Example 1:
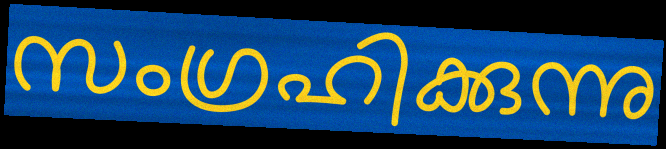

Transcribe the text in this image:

സംഗ്രഹിക്കുന്നു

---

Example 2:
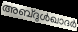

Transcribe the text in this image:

അബ്ദുൾഖാദർ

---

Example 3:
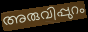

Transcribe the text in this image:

അരുവിപ്പുറം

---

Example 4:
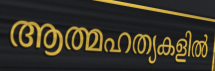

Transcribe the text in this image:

ആത്മഹത്യകളിൽ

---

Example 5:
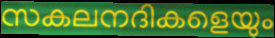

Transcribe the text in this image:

സകലനദികളെയും